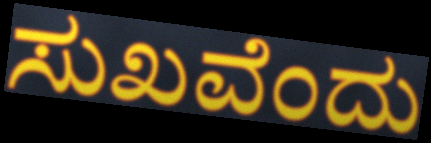
ಸುಖವೆಂದು